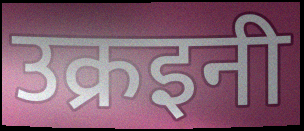
उक्रइनी